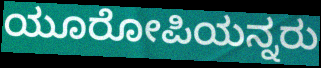
ಯೂರೋಪಿಯನ್ನರು